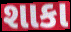
શાકા